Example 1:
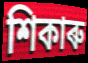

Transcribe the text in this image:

শিকাৰু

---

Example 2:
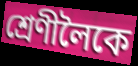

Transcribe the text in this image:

শ্ৰেণীলৈকে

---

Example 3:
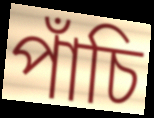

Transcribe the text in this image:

পাঁচি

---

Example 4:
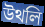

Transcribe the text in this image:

উথলি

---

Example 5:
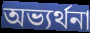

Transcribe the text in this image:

অভ্যৰ্থনা